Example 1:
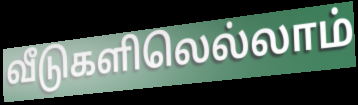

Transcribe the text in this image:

வீடுகளிலெல்லாம்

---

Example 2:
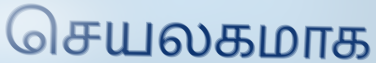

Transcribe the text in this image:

செயலகமாக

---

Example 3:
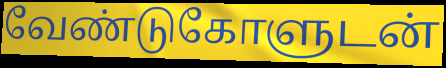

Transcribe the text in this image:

வேண்டுகோளுடன்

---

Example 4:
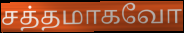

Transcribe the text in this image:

சத்தமாகவோ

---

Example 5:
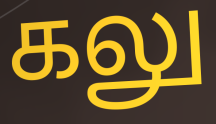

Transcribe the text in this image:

கலு